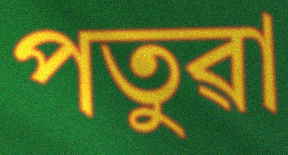
পতুৱা